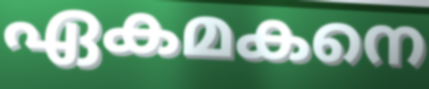
ഏകമകനെ